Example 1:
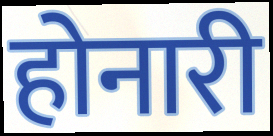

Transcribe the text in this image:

होनारी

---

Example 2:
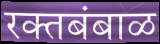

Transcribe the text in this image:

रक्‍तबंबाळ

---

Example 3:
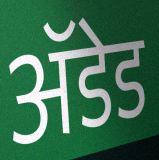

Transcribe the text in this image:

ॲडेड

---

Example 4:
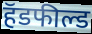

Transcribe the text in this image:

हॅडफील्ड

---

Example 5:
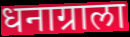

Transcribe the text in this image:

धनाग्राला